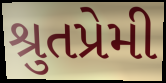
શ્રુતપ્રેમી